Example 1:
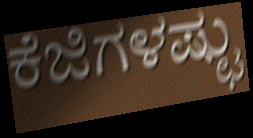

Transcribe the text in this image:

ಕೆಜಿಗಳಷ್ಟು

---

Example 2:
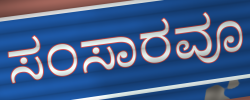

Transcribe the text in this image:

ಸಂಸಾರವೂ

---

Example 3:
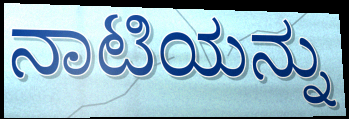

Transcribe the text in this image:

ನಾಟಿಯನ್ನು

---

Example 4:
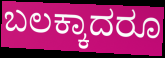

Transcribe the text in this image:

ಬಲಕ್ಕಾದರೂ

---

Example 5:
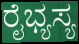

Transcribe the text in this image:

ರೈಭ್ಯಸ್ಯ